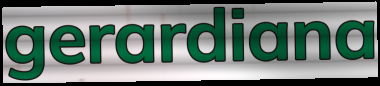
gerardiana